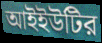
আইইউটির